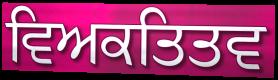
ਵਿਅਕਤਿਤਵ